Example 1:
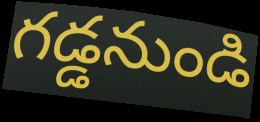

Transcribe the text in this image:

గడ్డనుండి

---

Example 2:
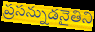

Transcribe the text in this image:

ప్రసన్నుడనైతిని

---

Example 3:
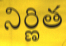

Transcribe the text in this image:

నిర్ణిత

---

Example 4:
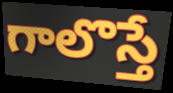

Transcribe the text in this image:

గాలొస్తే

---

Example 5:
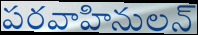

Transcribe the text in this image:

పరవాహినులన్